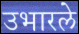
उभारले